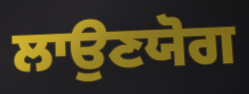
ਲਾਉਣਯੋਗ